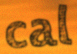
cal